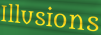
Illusions